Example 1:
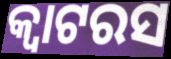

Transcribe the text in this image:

କ୍ୱାଟରସ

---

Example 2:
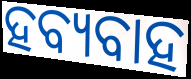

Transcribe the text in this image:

ହବ୍ୟବାହ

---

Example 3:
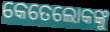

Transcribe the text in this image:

କେତେଲୋକଙ୍କୁ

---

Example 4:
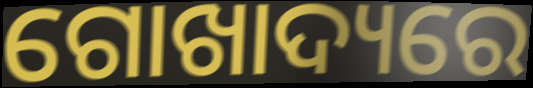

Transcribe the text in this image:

ଗୋଖାଦ୍ୟରେ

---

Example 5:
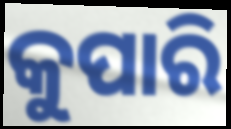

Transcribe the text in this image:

କୁପାରି